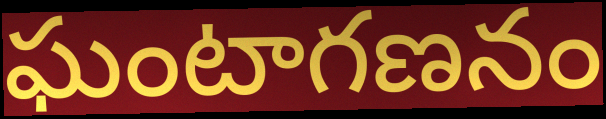
ఘంటాగణనం